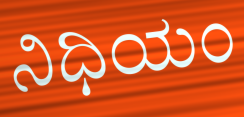
ನಿಧಿಯಂ